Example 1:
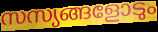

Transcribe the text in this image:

സസ്യങ്ങളോടും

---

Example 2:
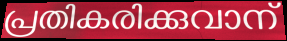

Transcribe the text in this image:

പ്രതികരിക്കുവാന്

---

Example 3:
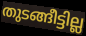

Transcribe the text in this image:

തുടങ്ങീട്ടില്ല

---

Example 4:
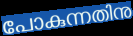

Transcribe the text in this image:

പോകുന്നതിനു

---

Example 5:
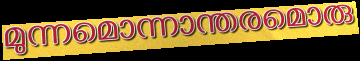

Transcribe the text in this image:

മുന്നമൊന്നാന്തരമൊരു